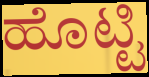
ಹೊಟ್ಟಿ